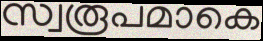
സ്വരൂപമാകെ